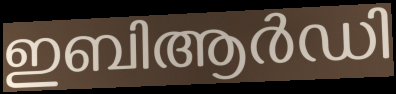
ഇബിആർഡി